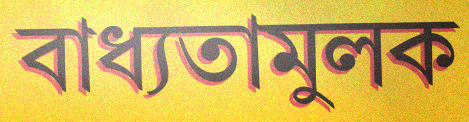
বাধ্যতামুলক